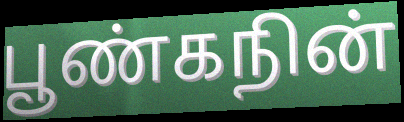
பூண்கநின்